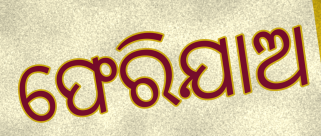
ଫେରିଯାଅ